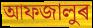
আফজালুৰ